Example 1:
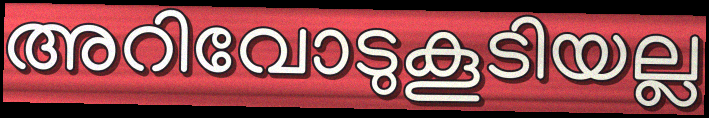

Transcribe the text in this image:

അറിവോടുകൂടിയല്ല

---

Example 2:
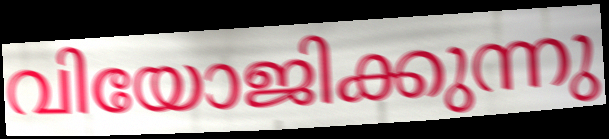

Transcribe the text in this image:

വിയോജിക്കുന്നു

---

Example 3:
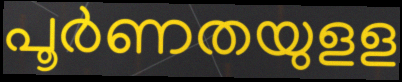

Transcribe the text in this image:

പൂർണതയുളള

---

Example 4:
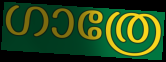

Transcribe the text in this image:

ഗാത്രേ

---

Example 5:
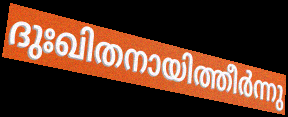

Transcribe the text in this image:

ദുഃഖിതനായിത്തീർന്നു